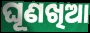
ଘୂଣଖିଆ